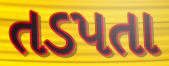
તડપતા